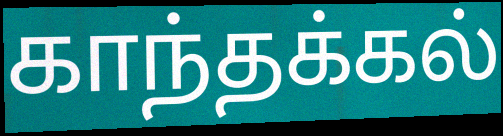
காந்தக்கல்